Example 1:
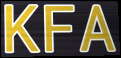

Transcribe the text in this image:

KFA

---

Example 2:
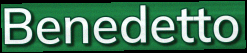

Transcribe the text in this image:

Benedetto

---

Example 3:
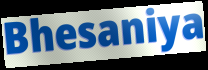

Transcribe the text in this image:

Bhesaniya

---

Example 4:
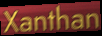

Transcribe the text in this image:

Xanthan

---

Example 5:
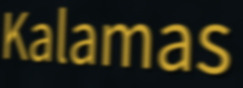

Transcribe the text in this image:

Kalamas